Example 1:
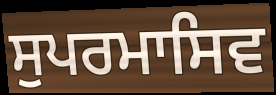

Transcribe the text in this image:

ਸੁਪਰਮਾਸਿਵ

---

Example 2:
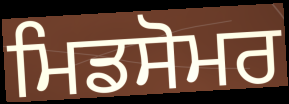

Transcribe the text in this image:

ਮਿਡਸੋਮਰ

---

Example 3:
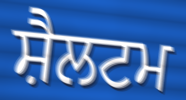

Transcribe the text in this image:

ਸ਼ੈਲਟਮ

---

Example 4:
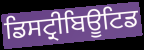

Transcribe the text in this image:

ਡਿਸਟ੍ਰੀਬਿਊਟਿਡ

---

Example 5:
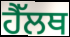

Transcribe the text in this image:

ਹੈੱਲਥ